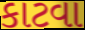
કાટવા